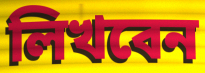
লিখবেন